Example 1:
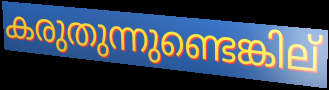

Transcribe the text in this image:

കരുതുന്നുണ്ടെങ്കില്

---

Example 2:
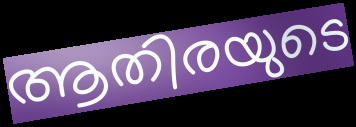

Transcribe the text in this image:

ആതിരയുടെ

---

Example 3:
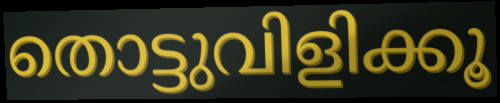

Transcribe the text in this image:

തൊട്ടുവിളിക്കൂ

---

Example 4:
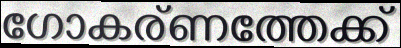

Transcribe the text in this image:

ഗോകര്ണത്തേക്ക്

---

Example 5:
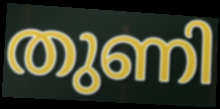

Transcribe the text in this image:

തുണി